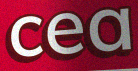
cea